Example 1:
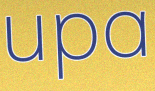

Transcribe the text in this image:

upa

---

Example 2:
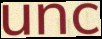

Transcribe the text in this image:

unc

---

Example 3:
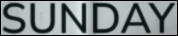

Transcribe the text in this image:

SUNDAY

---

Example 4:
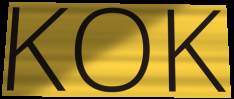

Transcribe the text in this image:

KOK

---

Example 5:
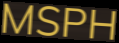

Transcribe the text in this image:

MSPH